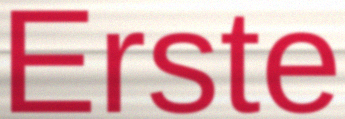
Erste